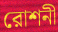
রোশনী